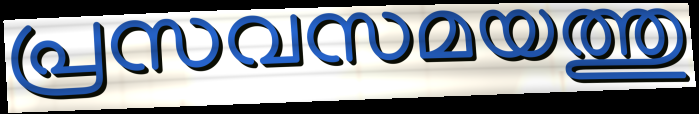
പ്രസവസമയത്തു